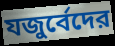
যজুর্বেদের